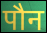
पौन